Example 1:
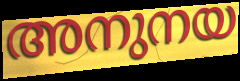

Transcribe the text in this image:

അനുനയ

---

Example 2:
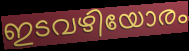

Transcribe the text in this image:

ഇടവഴിയോരം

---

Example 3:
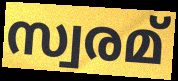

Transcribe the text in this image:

സ്വരമ്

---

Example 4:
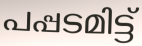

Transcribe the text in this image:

പപ്പടമിട്ട്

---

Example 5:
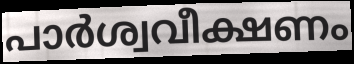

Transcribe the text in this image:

പാർശ്വവീക്ഷണം